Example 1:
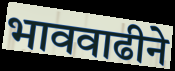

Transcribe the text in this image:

भाववाढीने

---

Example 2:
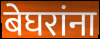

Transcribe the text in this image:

बेघरांना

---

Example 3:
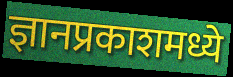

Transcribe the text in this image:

ज्ञानप्रकाशमध्ये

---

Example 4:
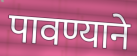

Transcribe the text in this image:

पावण्याने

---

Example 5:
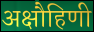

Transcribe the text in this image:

अक्षौहिणी